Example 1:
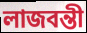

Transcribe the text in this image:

লাজবন্তী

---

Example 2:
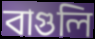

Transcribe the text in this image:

বাগুলি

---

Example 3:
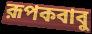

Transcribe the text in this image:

রূপকবাবু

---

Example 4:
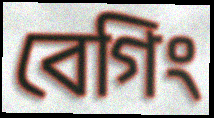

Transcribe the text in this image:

বেগিং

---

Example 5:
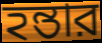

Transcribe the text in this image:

হন্তার